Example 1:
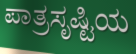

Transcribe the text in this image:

ಪಾತ್ರಸೃಷ್ಟಿಯ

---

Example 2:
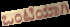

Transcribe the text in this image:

ಒಂಟಿಯಾಗಿ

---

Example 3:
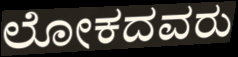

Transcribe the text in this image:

ಲೋಕದವರು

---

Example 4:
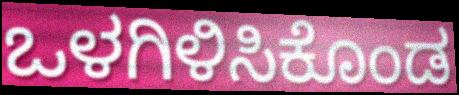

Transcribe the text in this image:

ಒಳಗಿಳಿಸಿಕೊಂಡ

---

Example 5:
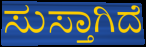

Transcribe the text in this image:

ಸುಸ್ತಾಗಿದೆ